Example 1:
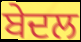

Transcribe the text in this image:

ਬੇਦਲ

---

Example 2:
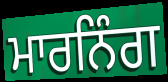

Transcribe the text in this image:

ਮਾਰਨਿੰਗ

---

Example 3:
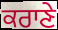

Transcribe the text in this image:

ਕਰਾਣੇ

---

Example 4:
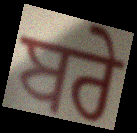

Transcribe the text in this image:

ਬਰੇ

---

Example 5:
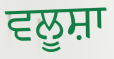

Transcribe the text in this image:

ਵਲੂਸ਼ਾ